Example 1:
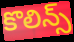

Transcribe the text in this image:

కొలిన్స్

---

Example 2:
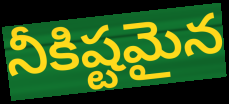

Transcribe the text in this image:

నీకిష్టమైన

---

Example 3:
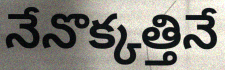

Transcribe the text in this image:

నేనొక్కత్తినే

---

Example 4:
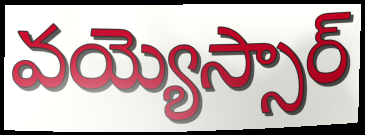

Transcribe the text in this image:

వయ్యెస్సార్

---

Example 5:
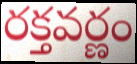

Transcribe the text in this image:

రక్తవర్ణం